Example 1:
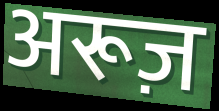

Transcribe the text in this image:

अरूज़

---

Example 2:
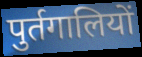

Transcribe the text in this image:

पुर्तगालियों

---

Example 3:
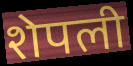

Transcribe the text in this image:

शेपली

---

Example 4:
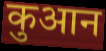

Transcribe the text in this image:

कुआन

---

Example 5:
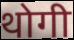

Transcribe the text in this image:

थोगी